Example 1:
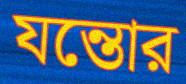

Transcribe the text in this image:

যন্তোর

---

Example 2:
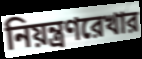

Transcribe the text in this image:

নিয়ন্ত্রণরেখার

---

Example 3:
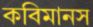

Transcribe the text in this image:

কবিমানস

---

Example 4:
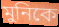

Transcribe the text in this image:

মুনিকে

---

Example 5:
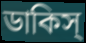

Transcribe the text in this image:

ডাকিস্